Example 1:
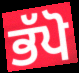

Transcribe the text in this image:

ਭੱਪੋ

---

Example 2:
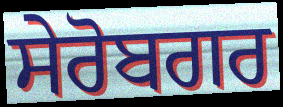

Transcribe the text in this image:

ਸੇਰੋਬਗਰ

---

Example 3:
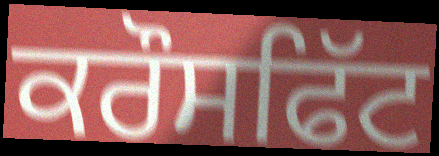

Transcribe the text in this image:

ਕਰੌਸਫਿੱਟ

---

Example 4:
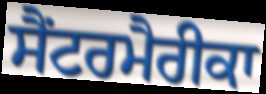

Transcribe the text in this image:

ਸੈਂਟਰਮੈਰੀਕਾ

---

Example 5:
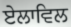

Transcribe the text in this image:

ਏਲਾਵਿਲ